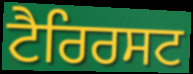
ਟੈਰਿਰਸਟ